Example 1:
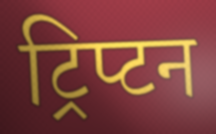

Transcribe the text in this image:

ट्रिप्टन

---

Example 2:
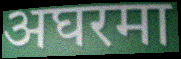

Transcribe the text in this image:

अघरमा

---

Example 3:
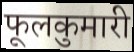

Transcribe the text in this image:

फूलकुमारी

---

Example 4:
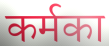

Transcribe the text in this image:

कर्मका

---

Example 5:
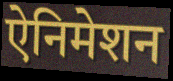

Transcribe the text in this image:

ऐनिमेशन